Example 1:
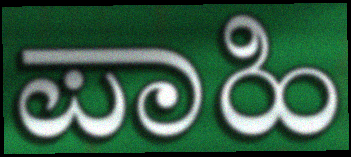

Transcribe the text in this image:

ಪಾಹಿ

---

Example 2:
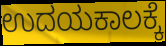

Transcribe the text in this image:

ಉದಯಕಾಲಕ್ಕೆ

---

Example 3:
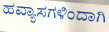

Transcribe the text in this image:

ಹವ್ಯಾಸಗಳಿಂದಾಗಿ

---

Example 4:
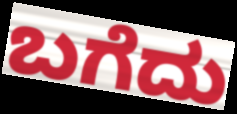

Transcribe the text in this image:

ಬಗೆದು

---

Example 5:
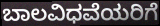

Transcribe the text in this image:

ಬಾಲವಿಧವೆಯರಿಗೆ